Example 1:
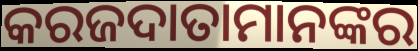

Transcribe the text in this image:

କରଜଦାତାମାନଙ୍କର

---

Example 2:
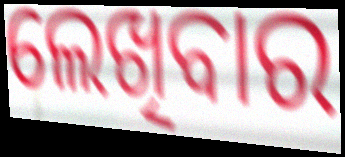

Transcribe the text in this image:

ଲେଖିବାର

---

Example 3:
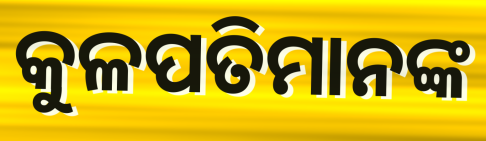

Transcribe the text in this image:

କୁଳପତିମାନଙ୍କ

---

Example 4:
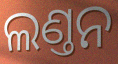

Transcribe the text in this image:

ଲଣ୍ତନ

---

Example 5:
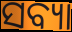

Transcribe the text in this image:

ସବ୍ୟା